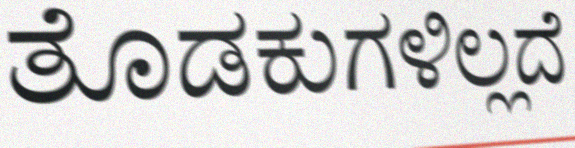
ತೊಡಕುಗಳಿಲ್ಲದೆ